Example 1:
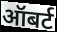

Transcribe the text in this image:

ऑबर्ट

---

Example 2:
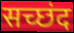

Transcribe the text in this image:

सच्छंद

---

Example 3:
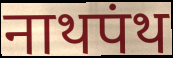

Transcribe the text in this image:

नाथपंथ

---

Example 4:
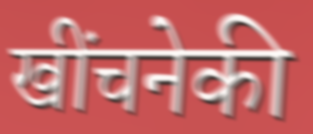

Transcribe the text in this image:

खींचनेकी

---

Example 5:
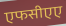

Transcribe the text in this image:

एफसीएए